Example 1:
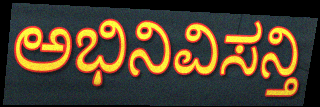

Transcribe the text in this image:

ಅಭಿನಿವಿಸನ್ತಿ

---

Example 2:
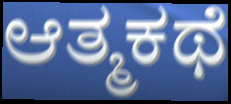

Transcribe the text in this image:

ಆತ್ಮಕಥೆ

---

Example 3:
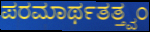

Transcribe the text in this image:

ಪರಮಾರ್ಥತತ್ತ್ವಂ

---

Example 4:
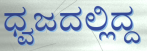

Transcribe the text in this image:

ಧ್ವಜದಲ್ಲಿದ್ದ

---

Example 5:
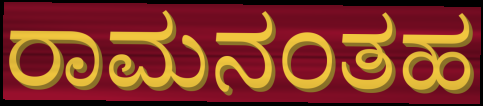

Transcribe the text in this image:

ರಾಮನಂತಹ